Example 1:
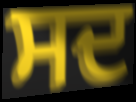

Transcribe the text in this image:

ਸਦ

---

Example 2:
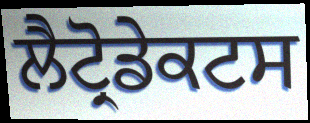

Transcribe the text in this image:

ਲੈਟ੍ਰੋਡੇਕਟਸ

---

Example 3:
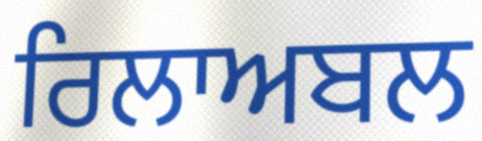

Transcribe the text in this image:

ਰਿਲਾਅਬਲ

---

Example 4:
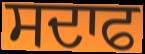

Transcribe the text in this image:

ਸਦਾਫ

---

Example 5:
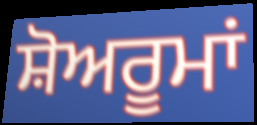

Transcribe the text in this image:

ਸ਼ੋਅਰੂਮਾਂ